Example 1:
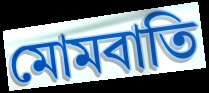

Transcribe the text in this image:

মোমবাতি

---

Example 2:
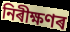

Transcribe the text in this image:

নিৰীক্ষণৰ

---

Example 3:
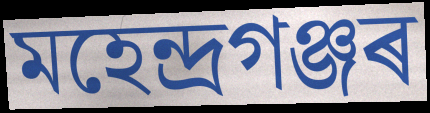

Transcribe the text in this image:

মহেন্দ্ৰগঞ্জৰ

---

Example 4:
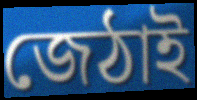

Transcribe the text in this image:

জেঠাই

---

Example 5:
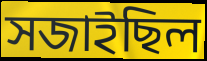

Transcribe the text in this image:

সজাইছিল